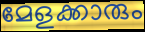
മേളക്കാരും